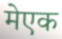
मेएक